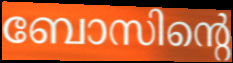
ബോസിന്റെ